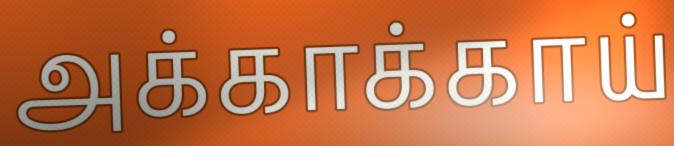
அக்காக்காய்